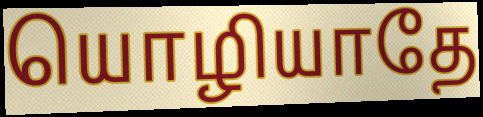
யொழியாதே